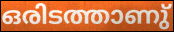
ഒരിടത്താണു്